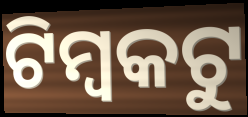
ଟିମ୍ବକଟୁ